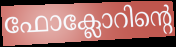
ഫോക്ലോറിന്റെ